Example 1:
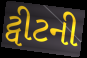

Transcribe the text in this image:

ટ્વીટની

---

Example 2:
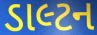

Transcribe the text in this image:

ડાલ્ટન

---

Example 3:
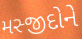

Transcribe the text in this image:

મસ્જીદોને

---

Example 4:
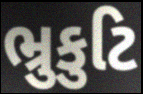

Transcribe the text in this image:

ભ્રુકુટિ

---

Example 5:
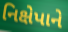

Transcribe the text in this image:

નિક્ષેપાને